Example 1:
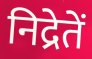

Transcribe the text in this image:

निद्रेतें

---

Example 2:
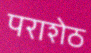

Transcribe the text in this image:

पराशेठ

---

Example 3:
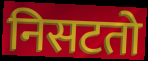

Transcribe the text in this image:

निसटतो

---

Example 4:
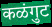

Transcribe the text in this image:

कळंगुट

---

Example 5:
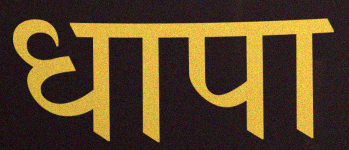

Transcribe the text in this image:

धापा